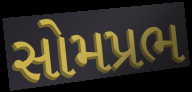
સોમપ્રભ